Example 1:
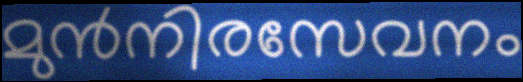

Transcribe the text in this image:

മുൻനിരസേവനം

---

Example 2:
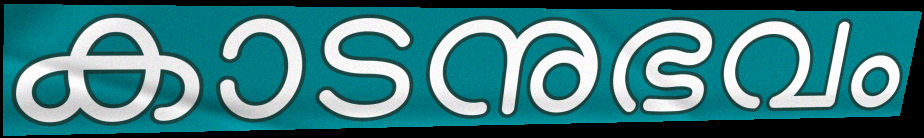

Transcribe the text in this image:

കാടനുഭവം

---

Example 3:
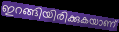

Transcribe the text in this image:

ഇറങ്ങിയിരിക്കുകയാണ്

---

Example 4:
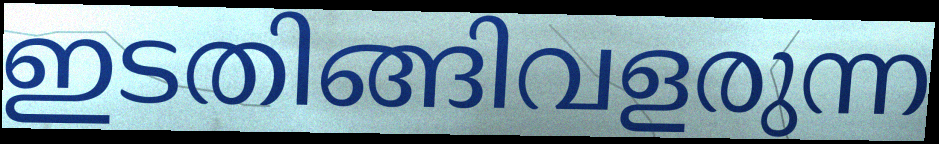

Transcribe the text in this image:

ഇടതിങ്ങിവളരുന്ന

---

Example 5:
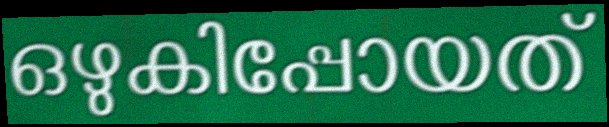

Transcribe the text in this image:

ഒഴുകിപ്പോയത്